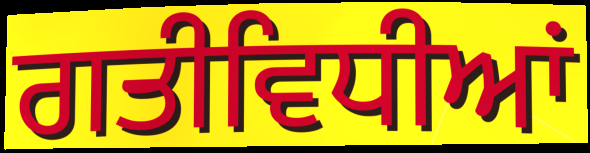
ਗਤੀਵਿਧੀਆਂ